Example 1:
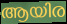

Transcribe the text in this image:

ആയിര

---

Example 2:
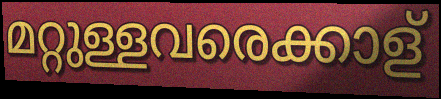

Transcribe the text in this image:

മറ്റുള്ളവരെക്കാള്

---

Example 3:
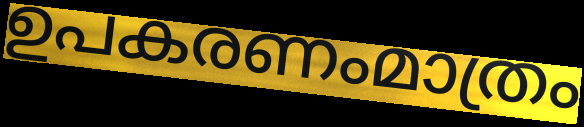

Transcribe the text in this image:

ഉപകരണംമാത്രം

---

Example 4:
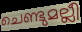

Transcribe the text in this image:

ചെണ്ടുമല്ലീ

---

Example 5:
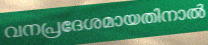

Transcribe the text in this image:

വനപ്രദേശമായതിനാൽ